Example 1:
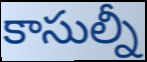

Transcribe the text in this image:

కాసుల్నీ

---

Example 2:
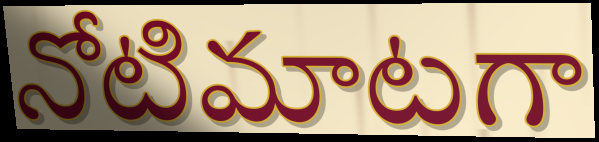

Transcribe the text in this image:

నోటిమాటగా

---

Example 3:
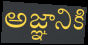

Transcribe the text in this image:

అజ్ఞానికి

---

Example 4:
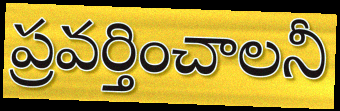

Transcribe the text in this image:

ప్రవర్తించాలనీ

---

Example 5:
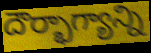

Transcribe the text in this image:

దౌర్భాగ్యాన్ని